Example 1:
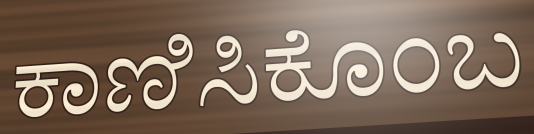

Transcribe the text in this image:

ಕಾಣಿಸಿಕೊಂಬ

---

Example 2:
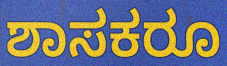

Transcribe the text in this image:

ಶಾಸಕರೂ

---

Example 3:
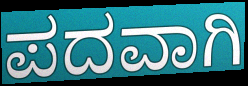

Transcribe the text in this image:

ಪದವಾಗಿ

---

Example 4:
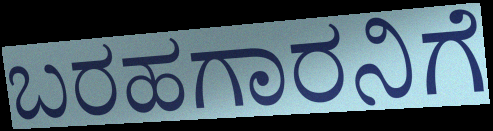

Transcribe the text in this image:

ಬರಹಗಾರನಿಗೆ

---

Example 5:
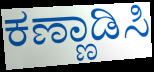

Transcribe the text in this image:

ಕಣ್ಣಾಡಿಸಿ